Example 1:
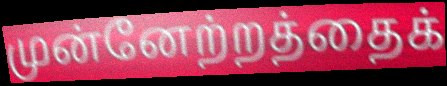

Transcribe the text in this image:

முன்னேற்றத்தைக்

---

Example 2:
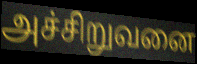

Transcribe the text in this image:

அச்சிறுவனை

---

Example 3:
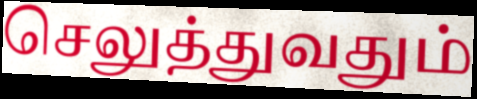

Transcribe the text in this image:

செலுத்துவதும்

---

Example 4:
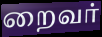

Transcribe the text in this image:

றைவர்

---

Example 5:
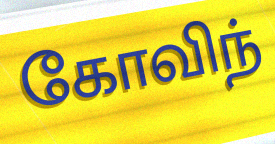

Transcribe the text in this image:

கோவிந்